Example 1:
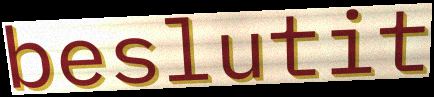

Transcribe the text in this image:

beslutit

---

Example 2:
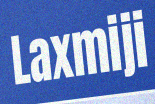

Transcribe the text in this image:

Laxmiji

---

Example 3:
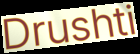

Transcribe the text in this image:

Drushti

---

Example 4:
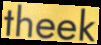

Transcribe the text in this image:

theek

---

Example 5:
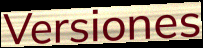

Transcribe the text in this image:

Versiones